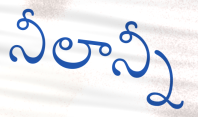
నీలాన్నీ